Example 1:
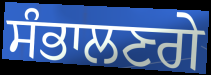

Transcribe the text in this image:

ਸੰਭਾਲਣਗੇ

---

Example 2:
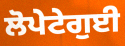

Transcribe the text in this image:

ਲੋਪੇਟੇਗੁਈ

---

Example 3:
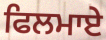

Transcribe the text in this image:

ਫਿਲਮਾਏ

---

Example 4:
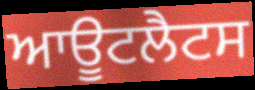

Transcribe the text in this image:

ਆਊਟਲੈਟਸ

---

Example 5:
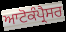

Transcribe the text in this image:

ਆਟੋਕੰਪ੍ਰੈਸਰ